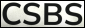
CSBS